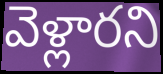
వెళ్లారని